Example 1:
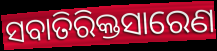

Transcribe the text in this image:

ସବାତିରିକ୍ତସାରେଣ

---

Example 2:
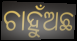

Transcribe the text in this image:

ଚାହୁଁଅଛ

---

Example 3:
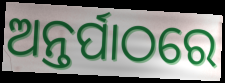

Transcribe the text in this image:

ଅନ୍ତର୍ପାଠରେ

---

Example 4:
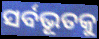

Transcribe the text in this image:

ସର୍ବଭୂତକୁ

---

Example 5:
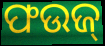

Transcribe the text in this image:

ଫଉଜ୍